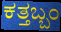
ಕತ್ತಬ್ಬಂ